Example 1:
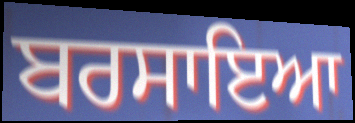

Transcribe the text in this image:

ਬਰਸਾਇਆ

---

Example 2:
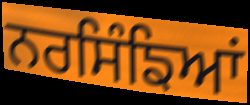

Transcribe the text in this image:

ਨਰਸਿੰਙਿਆਂ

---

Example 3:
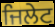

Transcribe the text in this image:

ਜਿਲੇਟ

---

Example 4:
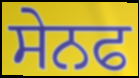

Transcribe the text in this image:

ਸੇਨਫ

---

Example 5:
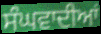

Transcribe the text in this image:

ਸੰਘਵਾਦੀਆਂ